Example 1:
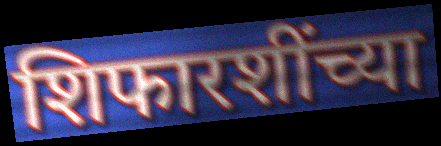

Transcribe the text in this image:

शिफारशींच्या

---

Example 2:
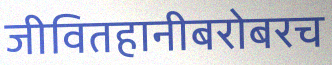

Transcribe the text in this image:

जीवितहानीबरोबरच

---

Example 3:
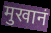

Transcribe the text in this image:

मुखानं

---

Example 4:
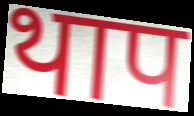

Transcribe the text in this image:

थाप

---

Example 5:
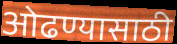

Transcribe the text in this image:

ओढण्यासाठी